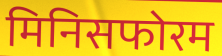
मिनिसफोरम